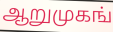
ஆறுமுகங்